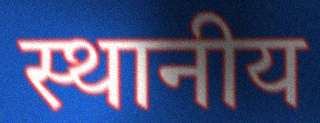
स्थानीय